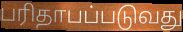
பரிதாபப்படுவது